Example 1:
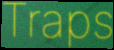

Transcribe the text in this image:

Traps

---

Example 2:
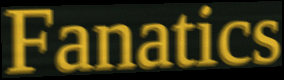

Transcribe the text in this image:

Fanatics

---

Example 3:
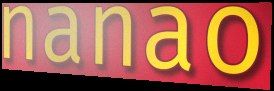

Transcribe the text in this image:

nanao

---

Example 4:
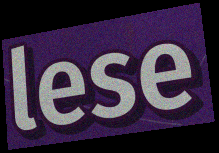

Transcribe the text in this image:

lese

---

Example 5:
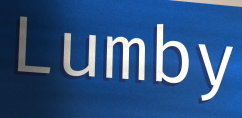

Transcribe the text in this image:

Lumby